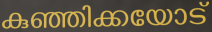
കുഞ്ഞിക്കയോട്